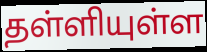
தள்ளியுள்ள